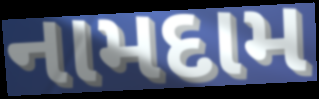
નામદામ